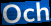
Och